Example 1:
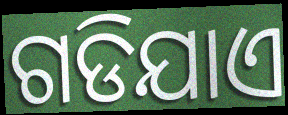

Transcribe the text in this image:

ଗଡିଯାଏ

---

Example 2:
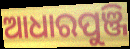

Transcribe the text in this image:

ଆଧାରପୁଞ୍ଜି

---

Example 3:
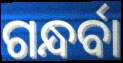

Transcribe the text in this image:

ଗନ୍ଧର୍ବା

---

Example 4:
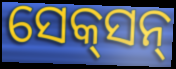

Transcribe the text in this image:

ସେକ୍‌ସନ୍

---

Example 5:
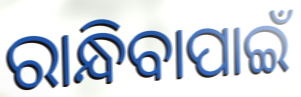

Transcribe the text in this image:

ରାନ୍ଧିବାପାଇଁ